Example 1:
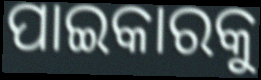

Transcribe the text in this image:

ପାଇକାରକୁ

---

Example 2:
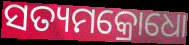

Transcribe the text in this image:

ସତ୍ୟମକ୍ରୋଧୋ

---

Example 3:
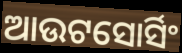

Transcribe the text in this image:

ଆଉଟସୋର୍ସିଂ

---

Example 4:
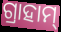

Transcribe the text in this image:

ଗ୍ରାହାମ୍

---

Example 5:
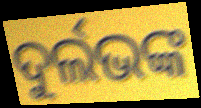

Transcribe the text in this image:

ଦୁର୍ଲଭଙ୍କ